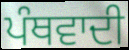
ਪੰਥਵਾਦੀ